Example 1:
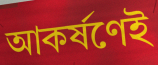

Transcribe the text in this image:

আকর্ষণেই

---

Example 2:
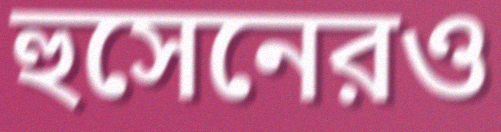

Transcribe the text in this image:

হুসেনেরও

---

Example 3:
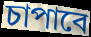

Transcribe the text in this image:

চাপাবে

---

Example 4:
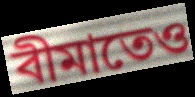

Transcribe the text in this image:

বীমাতেও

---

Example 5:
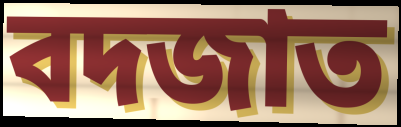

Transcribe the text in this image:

বদজাত